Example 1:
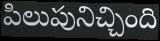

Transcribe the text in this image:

పిలుపునిచ్చింది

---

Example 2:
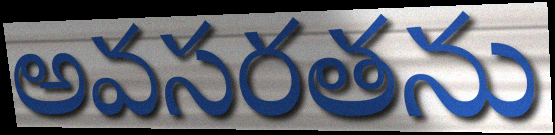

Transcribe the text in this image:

అవసరతను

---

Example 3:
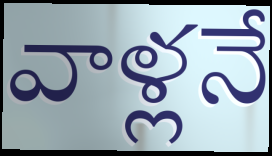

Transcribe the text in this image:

వాళ్లనే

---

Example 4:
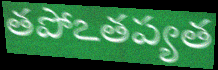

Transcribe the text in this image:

తపోఽతప్యత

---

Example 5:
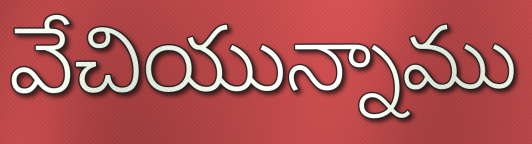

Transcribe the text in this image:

వేచియున్నాము